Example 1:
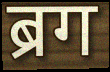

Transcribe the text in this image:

ब्रग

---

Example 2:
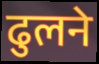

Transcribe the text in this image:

ढुलने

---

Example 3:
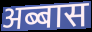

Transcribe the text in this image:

अब्बास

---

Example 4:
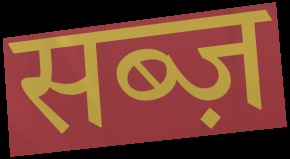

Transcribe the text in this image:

सब्ज़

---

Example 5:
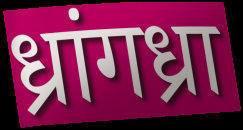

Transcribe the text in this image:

ध्रांगध्रा